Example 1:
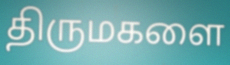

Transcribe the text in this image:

திருமகளை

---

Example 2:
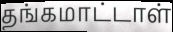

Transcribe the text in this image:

தங்கமாட்டாள்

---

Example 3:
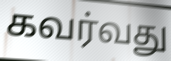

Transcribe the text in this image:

கவர்வது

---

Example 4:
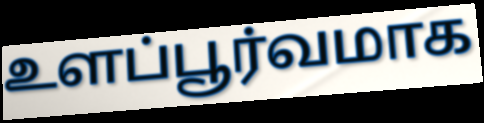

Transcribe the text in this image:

உளப்பூர்வமாக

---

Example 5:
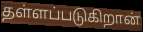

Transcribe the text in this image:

தள்ளப்படுகிறான்